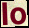
lo